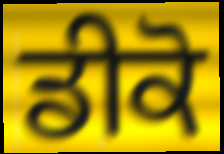
ਡੀਕੋ